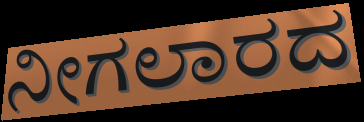
ನೀಗಲಾರದ